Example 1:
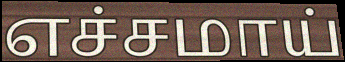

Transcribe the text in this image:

எச்சமாய்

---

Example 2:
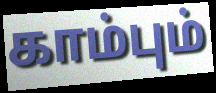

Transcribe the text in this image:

காம்பும்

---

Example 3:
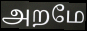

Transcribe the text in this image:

அறமே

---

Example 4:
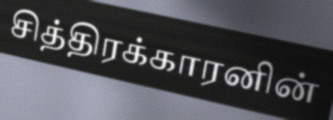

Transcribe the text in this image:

சித்திரக்காரனின்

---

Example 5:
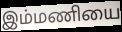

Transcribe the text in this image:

இம்மணியை